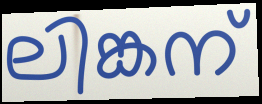
ലിങ്കന്